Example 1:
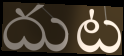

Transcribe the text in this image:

దుట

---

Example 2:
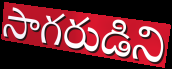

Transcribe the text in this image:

సాగరుడిని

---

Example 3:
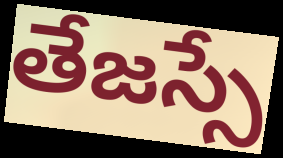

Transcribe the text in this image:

తేజస్సే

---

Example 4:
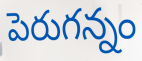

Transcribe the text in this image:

పెరుగన్నం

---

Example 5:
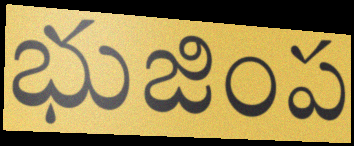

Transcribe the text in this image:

భుజింప